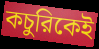
কচুরিকেই